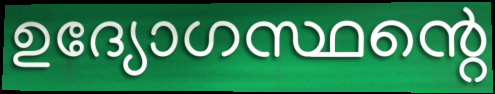
ഉദ്യോഗസ്ഥന്റെ